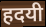
हदयी